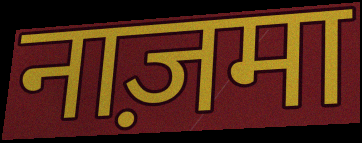
नाज़मा